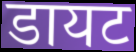
डायट